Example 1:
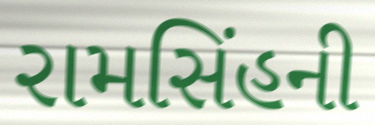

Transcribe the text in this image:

રામસિંહની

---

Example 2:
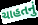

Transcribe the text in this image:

ચાહતનું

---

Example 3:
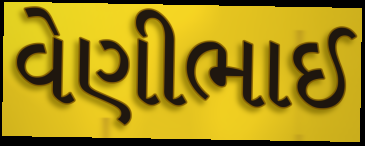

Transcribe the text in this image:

વેણીભાઈ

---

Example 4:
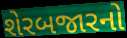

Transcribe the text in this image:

શેરબજારનો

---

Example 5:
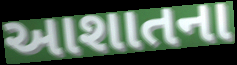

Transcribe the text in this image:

આશાતના